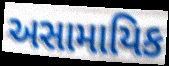
અસામાયિક